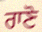
ਰਾਣੋ